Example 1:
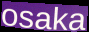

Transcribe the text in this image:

osaka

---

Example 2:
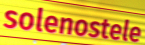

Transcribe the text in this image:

solenostele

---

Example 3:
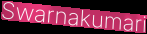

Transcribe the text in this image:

Swarnakumari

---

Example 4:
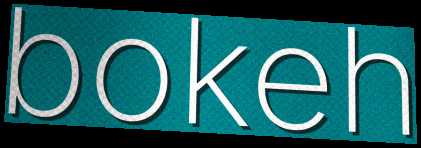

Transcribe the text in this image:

bokeh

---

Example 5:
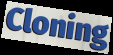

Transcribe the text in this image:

Cloning